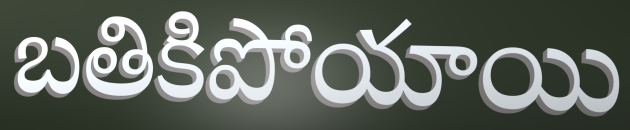
బతికిపోయాయి